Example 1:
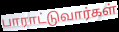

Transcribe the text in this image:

பாராட்டுவார்கள்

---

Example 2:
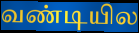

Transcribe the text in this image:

வண்டியில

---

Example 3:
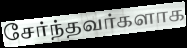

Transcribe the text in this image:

சேர்ந்தவர்களாக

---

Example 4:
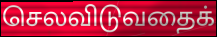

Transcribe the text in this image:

செலவிடுவதைக்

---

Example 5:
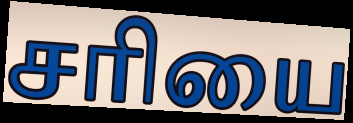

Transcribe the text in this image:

சரியை